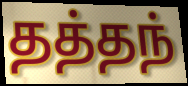
தத்தந்